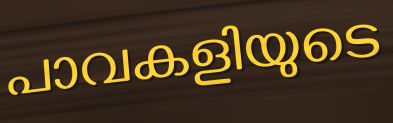
പാവകളിയുടെ